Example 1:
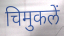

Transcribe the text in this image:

चिमुकलें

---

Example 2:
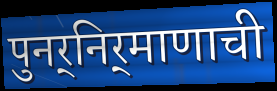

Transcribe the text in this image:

पुनर्निर्माणाची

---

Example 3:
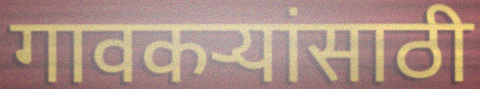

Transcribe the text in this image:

गावकऱ्यांसाठी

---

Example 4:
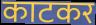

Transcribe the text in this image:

काटकर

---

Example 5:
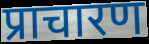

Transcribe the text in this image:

प्राचारण